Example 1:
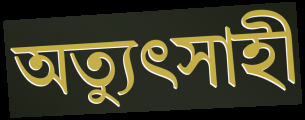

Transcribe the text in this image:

অত্যুৎসাহী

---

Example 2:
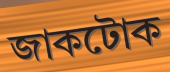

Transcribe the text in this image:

জাকটোক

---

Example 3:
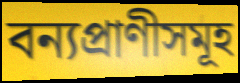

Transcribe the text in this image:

বন্যপ্ৰাণীসমূহ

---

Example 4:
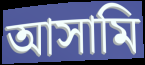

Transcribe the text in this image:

আসামি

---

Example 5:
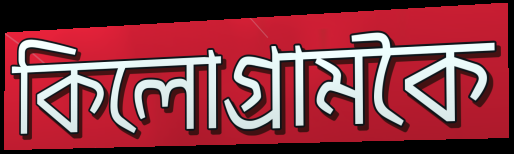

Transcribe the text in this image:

কিলোগ্ৰামকৈ